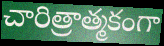
చారిత్రాత్మకంగా